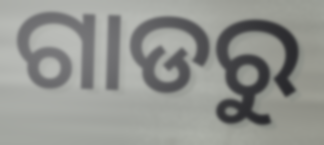
ଗାଡରୁ